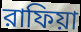
রাফিয়া